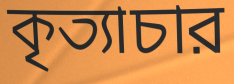
কৃত্যাচার